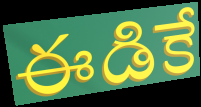
ఈడికే